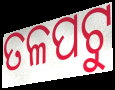
ତଳପଟୁ